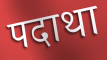
पदाथा